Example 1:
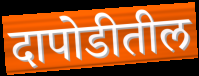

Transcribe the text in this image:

दापोडीतील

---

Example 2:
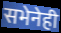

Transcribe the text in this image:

सभेनेही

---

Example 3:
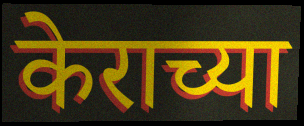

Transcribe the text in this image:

केराच्या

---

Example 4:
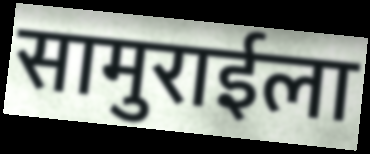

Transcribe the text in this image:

सामुराईला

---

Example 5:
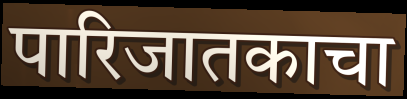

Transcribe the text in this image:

पारिजातकाचा